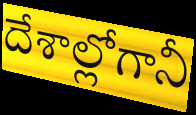
దేశాల్లోగానీ